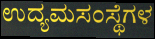
ಉದ್ಯಮಸಂಸ್ಥೆಗಳ